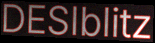
DESIblitz